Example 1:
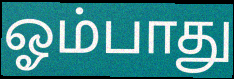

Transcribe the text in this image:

ஓம்பாது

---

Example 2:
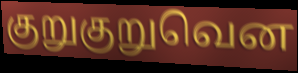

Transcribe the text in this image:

குறுகுறுவென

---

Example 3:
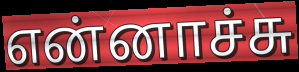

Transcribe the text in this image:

என்னாச்சு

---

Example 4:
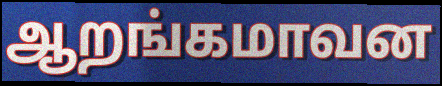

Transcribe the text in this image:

ஆறங்கமாவன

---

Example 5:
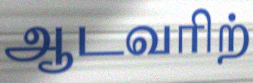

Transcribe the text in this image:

ஆடவரிற்